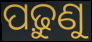
ପଢ଼ୁଣୁ